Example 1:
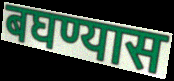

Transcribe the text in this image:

बघण्यास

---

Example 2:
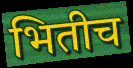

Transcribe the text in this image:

भितीच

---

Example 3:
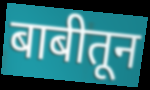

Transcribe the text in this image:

बाबीतून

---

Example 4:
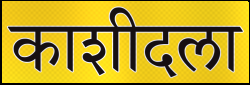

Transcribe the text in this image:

काशीदला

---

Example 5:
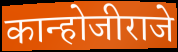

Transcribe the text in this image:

कान्होजीराजे